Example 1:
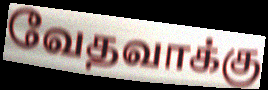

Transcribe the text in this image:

வேதவாக்கு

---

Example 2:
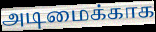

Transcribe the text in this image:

அடிமைக்காக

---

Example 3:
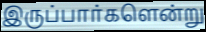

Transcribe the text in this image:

இருப்பார்களென்று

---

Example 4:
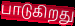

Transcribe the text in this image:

பாடுகிறது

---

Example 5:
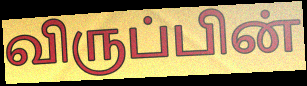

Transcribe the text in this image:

விருப்பின்